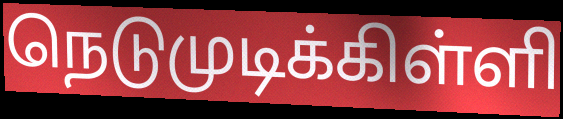
நெடுமுடிக்கிள்ளி